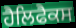
ਹੈਲਿਫੈਕਸ